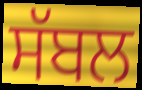
ਸੱਬਲ